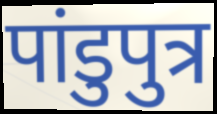
पांडुपुत्र